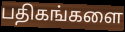
பதிகங்களை